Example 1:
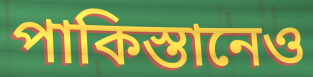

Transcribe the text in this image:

পাকিস্তানেও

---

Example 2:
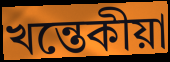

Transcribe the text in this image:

খন্তেকীয়া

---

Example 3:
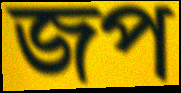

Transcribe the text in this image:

জপ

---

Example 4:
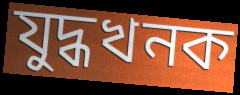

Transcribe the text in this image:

যুদ্ধখনক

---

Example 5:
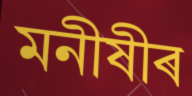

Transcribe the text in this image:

মনীষীৰ